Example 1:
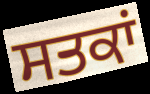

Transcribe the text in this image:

ਸਤਕਾਂ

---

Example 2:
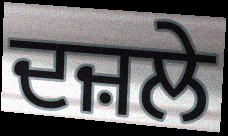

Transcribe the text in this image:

ਦਜ਼ਲੇ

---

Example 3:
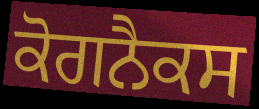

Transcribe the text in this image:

ਕੋਗਨੈਕਸ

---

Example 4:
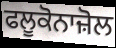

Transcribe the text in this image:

ਫਲੂਕੋਨਾਜ਼ੋਲ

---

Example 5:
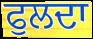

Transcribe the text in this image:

ਫੁਲਦਾ